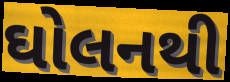
ઘોલનથી